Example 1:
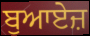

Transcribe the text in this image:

ਬੁਆਏਜ਼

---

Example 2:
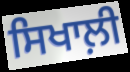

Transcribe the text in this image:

ਸਿਖਾਲ਼ੀ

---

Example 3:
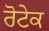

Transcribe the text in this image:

ਰੋਟੇਕ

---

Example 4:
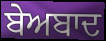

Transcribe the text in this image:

ਬੇਅਬਾਦ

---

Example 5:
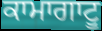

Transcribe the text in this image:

ਕਾਮਾਗਾਟੂ